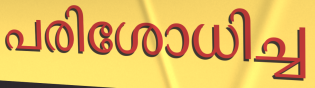
പരിശോധിച്ച